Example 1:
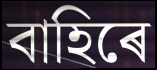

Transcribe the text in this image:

বাহিৰে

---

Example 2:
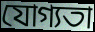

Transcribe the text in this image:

যোগ্যতা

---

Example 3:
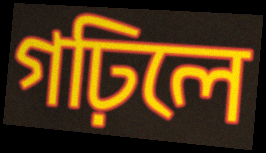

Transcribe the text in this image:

গঢ়িলে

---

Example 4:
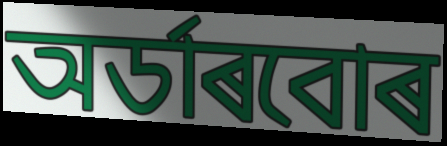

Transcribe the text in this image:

অৰ্ডাৰবোৰ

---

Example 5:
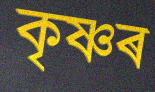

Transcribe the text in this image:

কৃষ্ণৰ